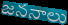
జననాలు